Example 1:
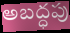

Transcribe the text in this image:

అబద్ధపు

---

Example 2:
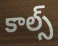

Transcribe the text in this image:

కాల్స్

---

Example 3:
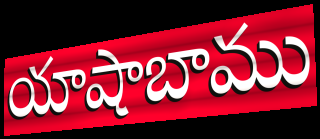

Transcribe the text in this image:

యాషాబాము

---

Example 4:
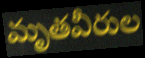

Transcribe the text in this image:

మృతవీరుల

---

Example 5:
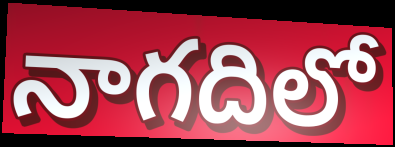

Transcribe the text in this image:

నాగదిలో